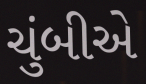
ચુંબીએ